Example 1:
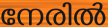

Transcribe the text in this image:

നേരിൽ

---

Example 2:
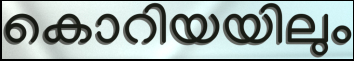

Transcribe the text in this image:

കൊറിയയിലും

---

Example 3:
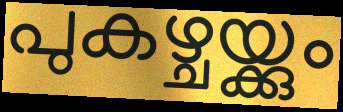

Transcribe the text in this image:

പുകഴ്ചയ്ക്കും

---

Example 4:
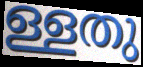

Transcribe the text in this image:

ള്ളതു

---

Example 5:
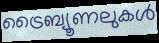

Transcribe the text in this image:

ട്രൈബ്യൂണലുകൾ